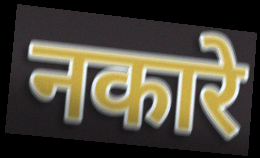
नकारे